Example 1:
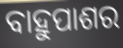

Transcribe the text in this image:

ବାହୁପାଶର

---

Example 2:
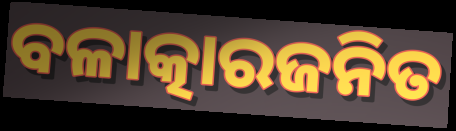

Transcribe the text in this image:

ବଳାତ୍କାରଜନିତ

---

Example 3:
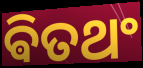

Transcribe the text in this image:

ଵିତଥଂ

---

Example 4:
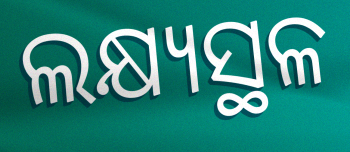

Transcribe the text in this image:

ଲକ୍ଷ୍ୟସ୍ଥଳ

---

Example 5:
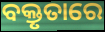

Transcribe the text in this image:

ବକ୍ତୃତାରେ